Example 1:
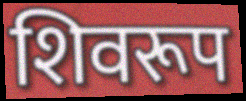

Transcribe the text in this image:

शिवरूप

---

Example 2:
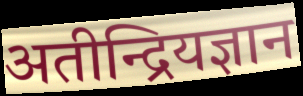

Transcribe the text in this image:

अतीन्द्रियज्ञान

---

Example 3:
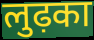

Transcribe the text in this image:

लुढ़का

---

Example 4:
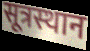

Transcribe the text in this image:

सूत्रस्थान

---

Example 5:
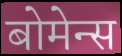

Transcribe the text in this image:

बोमेन्स